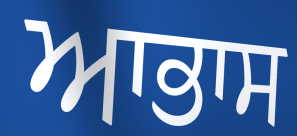
ਆਭਾਸ